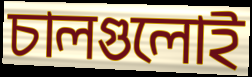
চালগুলোই